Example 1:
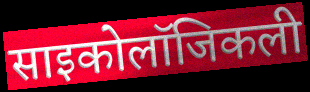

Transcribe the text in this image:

साइकोलॉजिकली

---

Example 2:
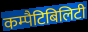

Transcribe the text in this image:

कम्पैटिबिलिटी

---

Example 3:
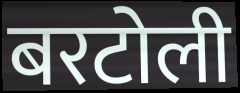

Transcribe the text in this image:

बरटोली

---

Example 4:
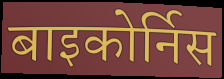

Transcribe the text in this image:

बाइकोर्निस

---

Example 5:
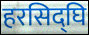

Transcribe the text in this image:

हरसिद्घि